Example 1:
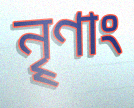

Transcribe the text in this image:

নৄণাং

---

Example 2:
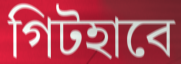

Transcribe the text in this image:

গিটহাবে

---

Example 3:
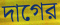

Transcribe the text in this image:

দাগের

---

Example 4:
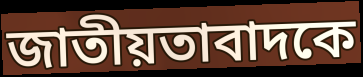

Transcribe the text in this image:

জাতীয়তাবাদকে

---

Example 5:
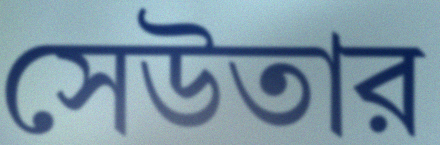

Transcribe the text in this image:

সেউতার